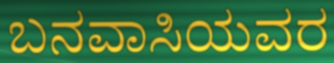
ಬನವಾಸಿಯವರ